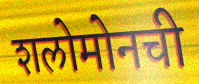
शलोमोनची